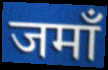
जमाँ